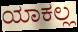
ಯಾಕಲ್ಲ